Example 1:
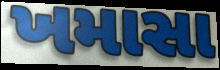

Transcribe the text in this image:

ખમાસા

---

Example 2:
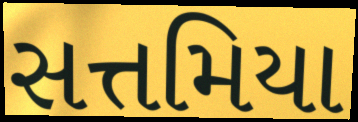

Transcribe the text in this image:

સત્તમિયા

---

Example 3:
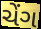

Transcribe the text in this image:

ચેંગ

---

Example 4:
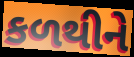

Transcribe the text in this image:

કળથીને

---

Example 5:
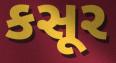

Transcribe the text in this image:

કસૂર